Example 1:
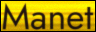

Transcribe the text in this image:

Manet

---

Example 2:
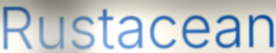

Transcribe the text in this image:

Rustacean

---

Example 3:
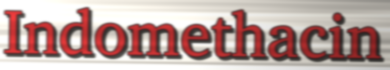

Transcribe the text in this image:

Indomethacin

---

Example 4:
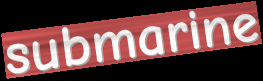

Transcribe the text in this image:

submarine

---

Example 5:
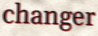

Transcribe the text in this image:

changer